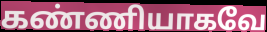
கண்ணியாகவே